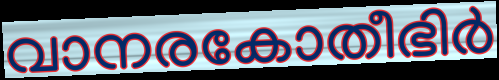
വാനരകോതീഭിർ